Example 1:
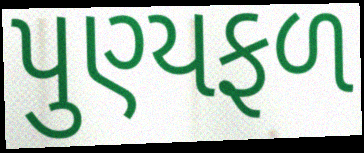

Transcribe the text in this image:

પુણ્યફળ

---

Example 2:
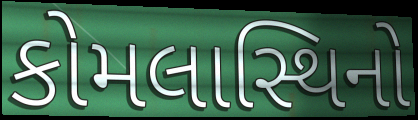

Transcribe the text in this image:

કોમલાસ્થિનો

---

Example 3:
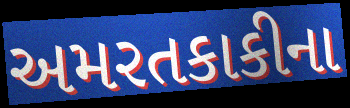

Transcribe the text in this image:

અમરતકાકીના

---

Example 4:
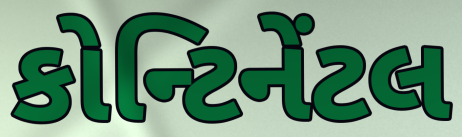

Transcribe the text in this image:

કોન્ટિનેંટલ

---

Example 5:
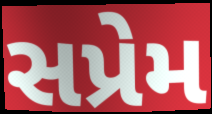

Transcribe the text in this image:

સપ્રેમ